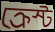
ক্রেস্ট